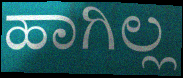
ಹಾಗಿಲ್ಲ